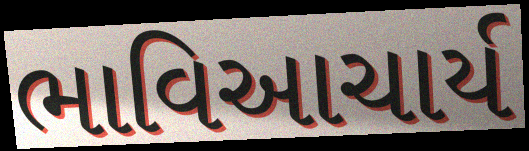
ભાવિઆચાર્ય